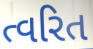
ત્વરિત